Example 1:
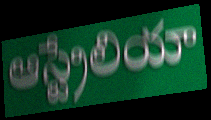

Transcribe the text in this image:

ఆస్ట్రేలియా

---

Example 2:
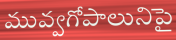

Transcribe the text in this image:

మువ్వగోపాలునిపై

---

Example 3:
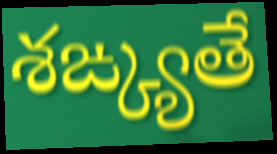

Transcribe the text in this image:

శఙ్క్యతే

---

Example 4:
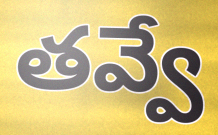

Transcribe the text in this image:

తవ్వే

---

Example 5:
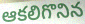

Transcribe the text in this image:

ఆకలిగొనిన